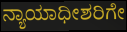
ನ್ಯಾಯಾಧೀಶರಿಗೇ